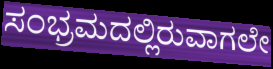
ಸಂಭ್ರಮದಲ್ಲಿರುವಾಗಲೇ